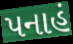
પનાહં